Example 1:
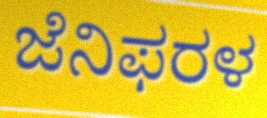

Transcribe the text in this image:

ಜೆನಿಫರಳ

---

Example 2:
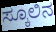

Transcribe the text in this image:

ಸ್ಕೂಲಿನ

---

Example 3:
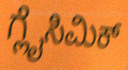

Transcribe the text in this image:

ಗ್ಲೈಸಿಮಿಕ್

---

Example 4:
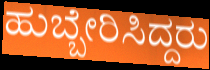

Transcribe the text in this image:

ಹುಬ್ಬೇರಿಸಿದ್ದರು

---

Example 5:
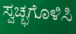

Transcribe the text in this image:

ಸ್ವಚ್ಛಗೊಳಿಸಿ